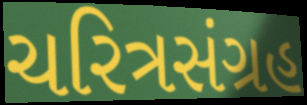
ચરિત્રસંગ્રહ